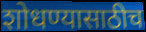
शोधण्यासाठीच